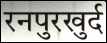
रनपुरखुर्द